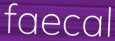
faecal